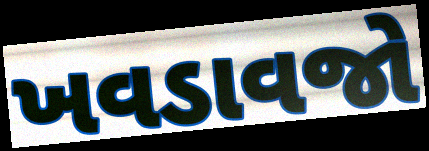
ખવડાવજો